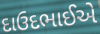
દાઉદભાઈએ